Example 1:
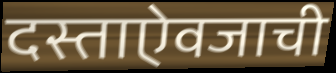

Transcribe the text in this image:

दस्ताऐवजाची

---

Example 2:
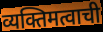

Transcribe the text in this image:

व्यक्तिमत्वाची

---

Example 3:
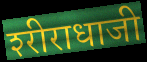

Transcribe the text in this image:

श्रीराधाजी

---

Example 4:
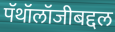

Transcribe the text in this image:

पॅथॉलॉजीबद्दल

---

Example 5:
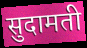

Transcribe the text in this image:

सुदामती